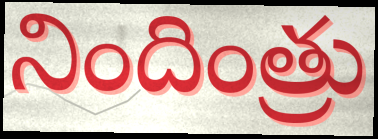
నిందింత్రు